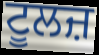
ਟੂਲਜ਼